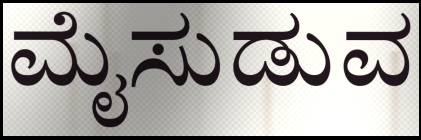
ಮೈಸುಡುವ